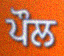
ਪੌਲ